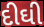
દીઘી